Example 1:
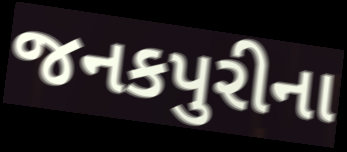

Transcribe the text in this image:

જનકપુરીના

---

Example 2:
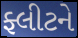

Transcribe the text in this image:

ફ્લીટને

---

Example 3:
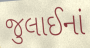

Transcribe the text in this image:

જુલાઈનાં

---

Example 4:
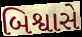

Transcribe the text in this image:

બિશ્વાસે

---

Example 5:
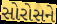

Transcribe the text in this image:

સોરોસને